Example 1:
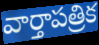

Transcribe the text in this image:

వార్తాపత్రిక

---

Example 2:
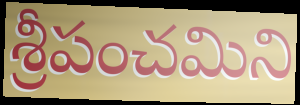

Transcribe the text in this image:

శ్రీపంచమిని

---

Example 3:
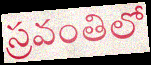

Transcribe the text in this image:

స్రవంతిలో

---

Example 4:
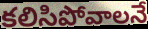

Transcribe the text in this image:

కలిసిపోవాలనే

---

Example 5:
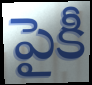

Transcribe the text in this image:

పైకీ